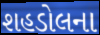
શહડોલના